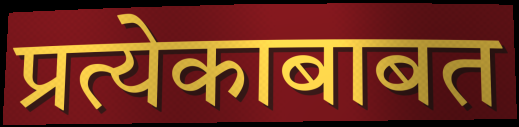
प्रत्येकाबाबत